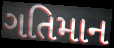
ગતિમાન